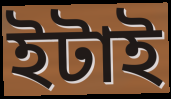
ইটাই